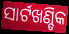
ସାର୍ଟଖଣ୍ଡିକ